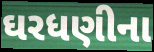
ઘરધણીના